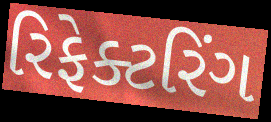
રિફેક્ટરિંગ